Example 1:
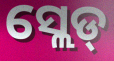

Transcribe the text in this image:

ସ୍ଲେଡ୍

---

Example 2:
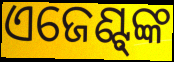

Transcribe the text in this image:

ଏଜେଣ୍ଟ୍‍ଙ୍କ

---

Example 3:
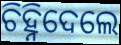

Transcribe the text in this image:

ଚିହ୍ନିଦେଲେ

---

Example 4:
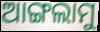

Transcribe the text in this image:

ଆଙ୍ଗଲାମୁ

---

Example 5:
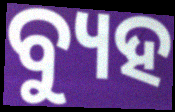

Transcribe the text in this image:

ବ୍ୟୁହ